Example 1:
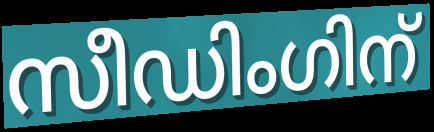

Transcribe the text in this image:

സീഡിംഗിന്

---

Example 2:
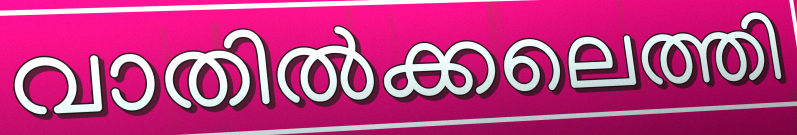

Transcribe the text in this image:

വാതിൽക്കലെത്തി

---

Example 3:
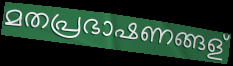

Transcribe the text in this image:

മതപ്രഭാഷണങ്ങള്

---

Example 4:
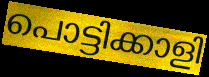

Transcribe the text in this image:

പൊട്ടിക്കാളി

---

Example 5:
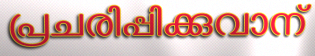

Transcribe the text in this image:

പ്രചരിപ്പിക്കുവാന്